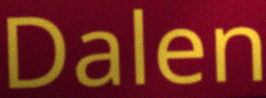
Dalen